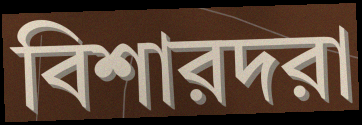
বিশারদরা